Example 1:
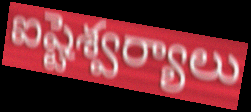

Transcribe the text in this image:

ఐష్టెశ్వర్యాలు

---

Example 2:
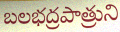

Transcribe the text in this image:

బలభద్రపాత్రుని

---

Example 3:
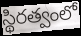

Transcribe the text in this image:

స్థిరత్వంలో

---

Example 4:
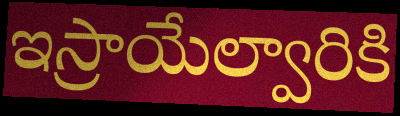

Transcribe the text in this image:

ఇస్రాయేల్వారికి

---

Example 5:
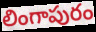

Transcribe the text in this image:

లింగాపురం